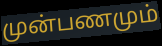
முன்பணமும்